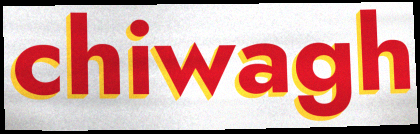
chiwagh